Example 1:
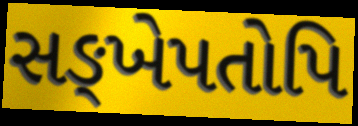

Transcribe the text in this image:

સઙ્ખેપતોપિ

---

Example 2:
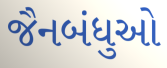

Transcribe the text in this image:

જૈનબંધુઓ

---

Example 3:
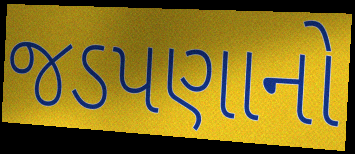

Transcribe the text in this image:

જડપણાનો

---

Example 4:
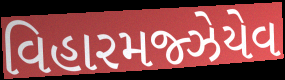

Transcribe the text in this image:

વિહારમજ્ઝેયેવ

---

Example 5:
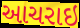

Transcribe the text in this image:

આચરાઇ